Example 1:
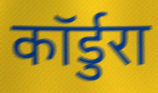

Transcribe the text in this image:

कॉर्डुरा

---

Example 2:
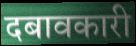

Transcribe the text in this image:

दबावकारी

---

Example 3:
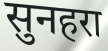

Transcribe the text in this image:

सुनहरा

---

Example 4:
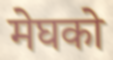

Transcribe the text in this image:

मेघको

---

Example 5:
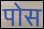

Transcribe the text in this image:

पोस